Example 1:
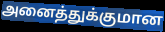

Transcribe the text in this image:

அனைத்துக்குமான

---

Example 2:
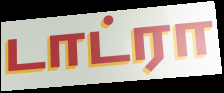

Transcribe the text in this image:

டாட்ரா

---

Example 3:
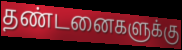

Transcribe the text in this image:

தண்டனைகளுக்கு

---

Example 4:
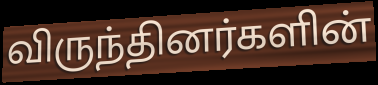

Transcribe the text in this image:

விருந்தினர்களின்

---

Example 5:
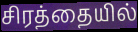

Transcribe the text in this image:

சிரத்தையில்